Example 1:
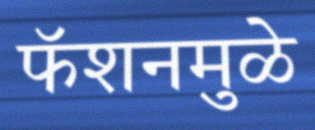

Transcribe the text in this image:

फॅशनमुळे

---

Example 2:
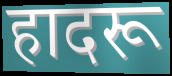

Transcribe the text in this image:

हादरू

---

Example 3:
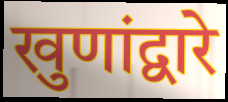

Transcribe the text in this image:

खुणांद्वारे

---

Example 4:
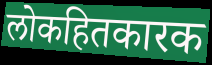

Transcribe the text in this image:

लोकहितकारक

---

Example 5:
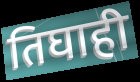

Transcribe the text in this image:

तिघाही